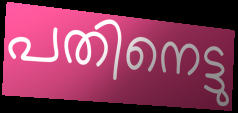
പതിനെട്ടു